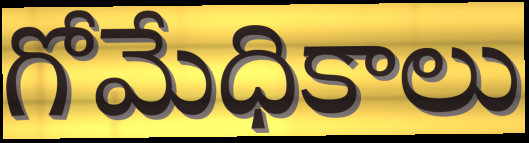
గోమేధికాలు